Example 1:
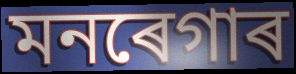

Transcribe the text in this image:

মনৰেগাৰ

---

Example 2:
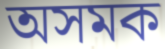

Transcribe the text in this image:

অসমক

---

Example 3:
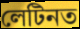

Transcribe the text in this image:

লেটিনত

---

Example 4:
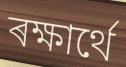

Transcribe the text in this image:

ৰক্ষাৰ্থে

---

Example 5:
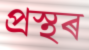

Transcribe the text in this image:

প্ৰস্থৰ